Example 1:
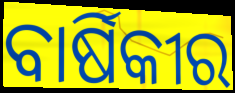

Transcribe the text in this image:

ବାର୍ଷିକୀର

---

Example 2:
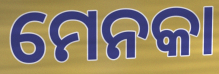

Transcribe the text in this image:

ମେନକା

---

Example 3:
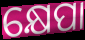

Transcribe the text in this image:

କ୍ଷେପା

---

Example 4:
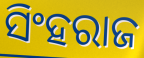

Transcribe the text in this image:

ସିଂହରାଜ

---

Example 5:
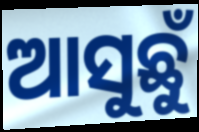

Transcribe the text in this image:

ଆସୁଛୁଁ